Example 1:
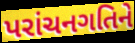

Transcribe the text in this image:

પરાંચનગતિને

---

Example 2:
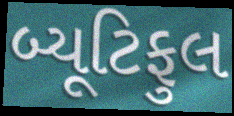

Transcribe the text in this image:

બ્યૂટિફુલ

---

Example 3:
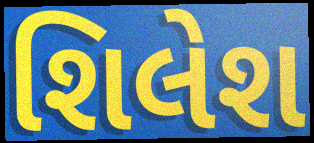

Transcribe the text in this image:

શિલેશ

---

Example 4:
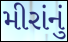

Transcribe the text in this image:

મીરાંનું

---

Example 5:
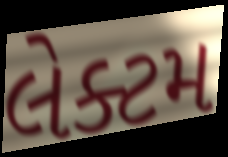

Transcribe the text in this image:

લેક્ટમ